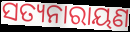
ସତ୍ଯନାରାୟଣ